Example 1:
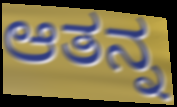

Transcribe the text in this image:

ಆತನ್ನ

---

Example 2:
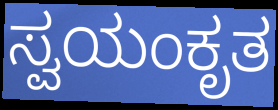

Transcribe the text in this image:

ಸ್ವಯಂಕೃತ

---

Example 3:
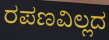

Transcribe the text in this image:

ರಪಣವಿಲ್ಲದ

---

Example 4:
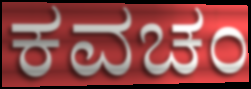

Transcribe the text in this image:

ಕವಚಂ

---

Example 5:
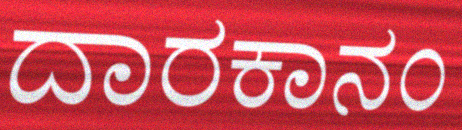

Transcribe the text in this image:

ದಾರಕಾನಂ